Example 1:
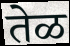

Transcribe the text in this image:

तेळ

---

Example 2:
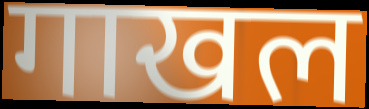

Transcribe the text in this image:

गाखल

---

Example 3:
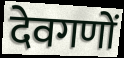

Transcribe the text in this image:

देवगणों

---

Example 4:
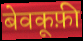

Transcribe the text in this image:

बेवकूफ़ी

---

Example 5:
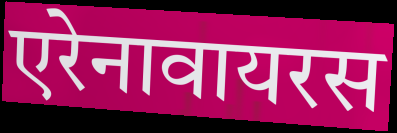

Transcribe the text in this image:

एरेनावायरस